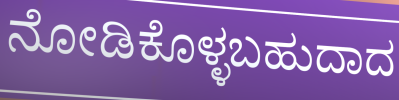
ನೋಡಿಕೊಳ್ಳಬಹುದಾದ